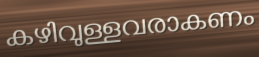
കഴിവുള്ളവരാകണം